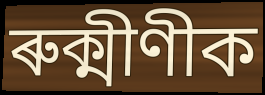
ৰুক্মীণীক